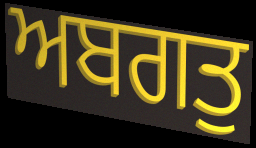
ਅਬਗਤੁ